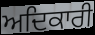
ਅਦਿਕਾਰੀ